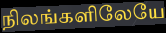
நிலங்களிலேயே